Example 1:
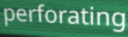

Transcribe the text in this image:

perforating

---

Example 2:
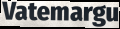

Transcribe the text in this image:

Vatemargu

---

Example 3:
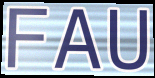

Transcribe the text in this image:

FAU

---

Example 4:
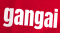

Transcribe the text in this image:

gangai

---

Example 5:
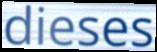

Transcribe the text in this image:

dieses